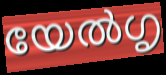
യേൽഗൃ